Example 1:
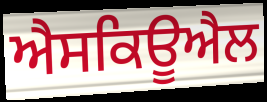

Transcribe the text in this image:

ਐਸਕਿਊਐਲ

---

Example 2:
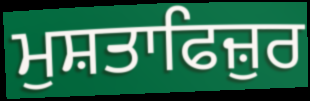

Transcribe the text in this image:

ਮੁਸ਼ਤਾਫਿਜ਼ੁਰ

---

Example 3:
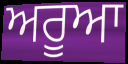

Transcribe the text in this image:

ਅਰੂਆ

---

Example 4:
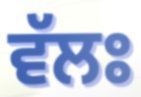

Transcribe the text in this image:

ਵੱਲਃ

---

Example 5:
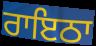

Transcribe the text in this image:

ਰਾਇਠਾ